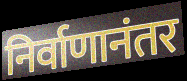
निर्वाणानंतर